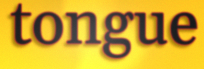
tongue